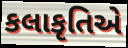
કલાકૃતિએ